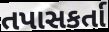
તપાસકર્તા